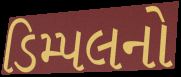
ડિમ્પલનો